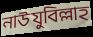
নাউযুবিল্লাহ